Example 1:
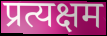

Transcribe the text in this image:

प्रत्यक्षम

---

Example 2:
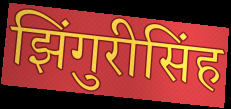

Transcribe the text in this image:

झिंगुरीसिंह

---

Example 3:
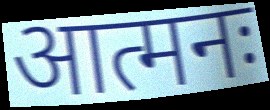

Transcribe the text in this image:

आत्मनः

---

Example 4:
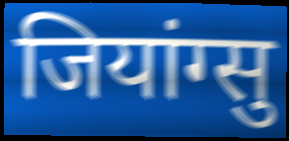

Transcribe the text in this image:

जियांग्सु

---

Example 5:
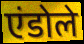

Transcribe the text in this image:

एंडोले